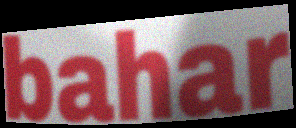
bahar